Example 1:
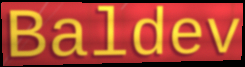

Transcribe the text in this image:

Baldev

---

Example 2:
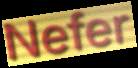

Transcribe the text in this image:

Nefer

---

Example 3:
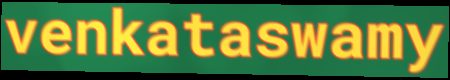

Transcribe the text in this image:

venkataswamy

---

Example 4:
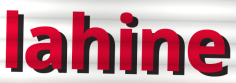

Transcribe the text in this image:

lahine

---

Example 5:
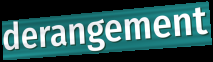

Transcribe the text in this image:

derangement